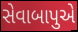
સેવાબાપુએ